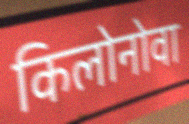
किलोनोवा